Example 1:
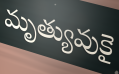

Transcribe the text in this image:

మృత్యువుకై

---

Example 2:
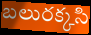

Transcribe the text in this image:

బలురక్కసి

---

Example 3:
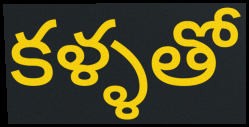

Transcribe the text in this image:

కళ్ళతో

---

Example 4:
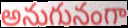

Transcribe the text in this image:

అనుగునంగా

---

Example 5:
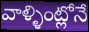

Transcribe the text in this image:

వాళ్ళింట్లోనే